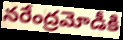
నరేంద్రమోడీకి